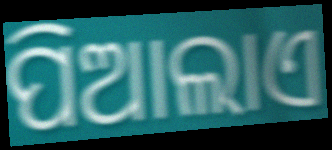
ପିଆଲାଏ